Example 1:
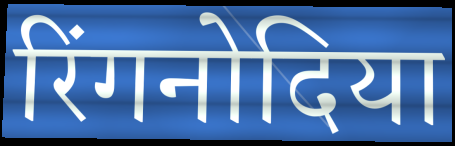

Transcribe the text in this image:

रिंगनोदिया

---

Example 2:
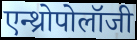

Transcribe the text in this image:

एन्थ्रोपोलॉजी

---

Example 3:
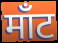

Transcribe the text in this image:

माँट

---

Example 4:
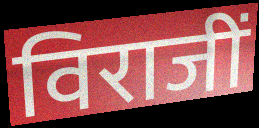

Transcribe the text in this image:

विराजीं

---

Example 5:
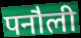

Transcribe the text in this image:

पनौली